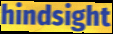
hindsight